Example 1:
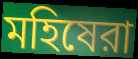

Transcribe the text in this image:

মহিষেরা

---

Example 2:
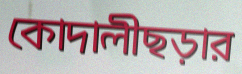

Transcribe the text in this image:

কোদালীছড়ার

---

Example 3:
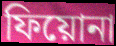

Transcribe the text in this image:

ফিয়োনা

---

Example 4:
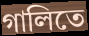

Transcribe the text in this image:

গালিতে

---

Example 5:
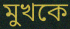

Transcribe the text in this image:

মুখকে